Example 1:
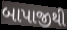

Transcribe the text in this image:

બાપાજીથી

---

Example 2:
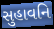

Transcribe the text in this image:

સુહાવનિ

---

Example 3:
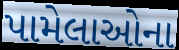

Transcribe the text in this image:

પામેલાઓના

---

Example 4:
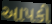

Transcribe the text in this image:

આપકી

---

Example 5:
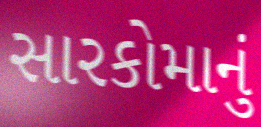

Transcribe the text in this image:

સારકોમાનું